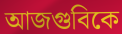
আজগুবিকে